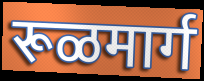
रूळमार्ग